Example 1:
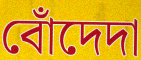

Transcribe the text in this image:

বোঁদেদা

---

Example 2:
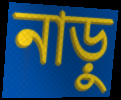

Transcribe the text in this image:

নাড়ু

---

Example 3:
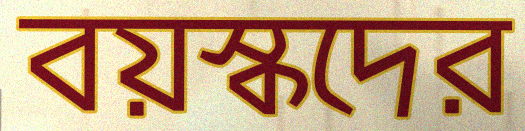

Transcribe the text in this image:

বয়স্কদের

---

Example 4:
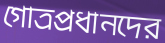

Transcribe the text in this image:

গোত্রপ্রধানদের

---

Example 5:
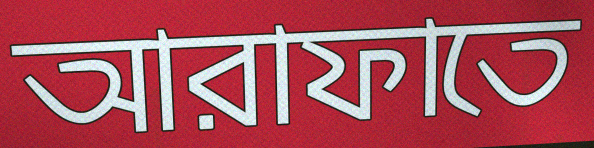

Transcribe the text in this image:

আরাফাতে